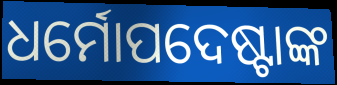
ଧର୍ମୋପଦେଷ୍ଟାଙ୍କ